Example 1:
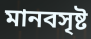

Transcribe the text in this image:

মানবসৃষ্ট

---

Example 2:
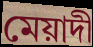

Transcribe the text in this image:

মেয়াদী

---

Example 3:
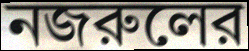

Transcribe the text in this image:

নজরুলের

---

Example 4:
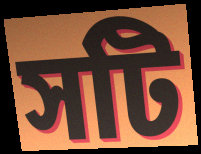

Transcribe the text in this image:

সটি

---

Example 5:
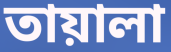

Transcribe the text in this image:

তায়ালা